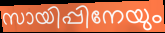
സായിപ്പിനേയും